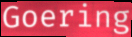
Goering